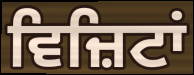
ਵਿਜ਼ਿਟਾਂ